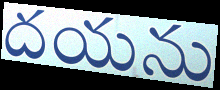
దయను